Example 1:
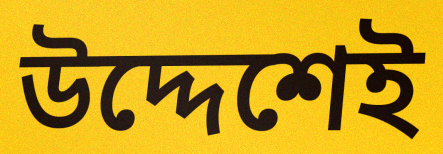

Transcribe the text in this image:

উদ্দেশেই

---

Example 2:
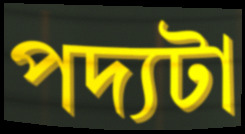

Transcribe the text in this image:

পদ্যটা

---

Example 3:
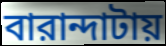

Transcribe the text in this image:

বারান্দাটায়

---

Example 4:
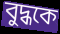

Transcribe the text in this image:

বুদ্ধকে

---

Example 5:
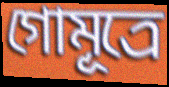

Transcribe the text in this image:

গোমূত্রে